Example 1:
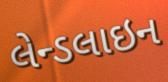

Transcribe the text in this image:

લેન્ડલાઇન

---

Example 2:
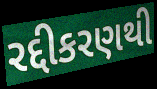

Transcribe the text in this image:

રદ્દીકરણથી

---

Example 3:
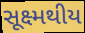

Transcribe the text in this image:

સૂક્ષ્મથીય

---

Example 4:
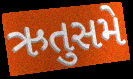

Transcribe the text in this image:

ઋતુસમે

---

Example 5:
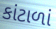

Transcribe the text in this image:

કાંટાળાં